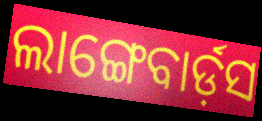
ଲାଙ୍ଗେବାର୍ଡ଼ସ